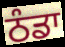
ਠੰਡਾ